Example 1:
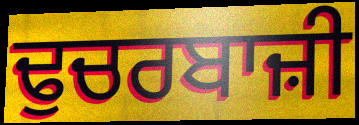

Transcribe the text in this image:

ਢੁਚਰਬਾਜ਼ੀ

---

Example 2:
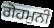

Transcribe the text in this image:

ਗੋਹਮੁਨੀ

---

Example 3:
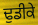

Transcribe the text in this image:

ਢੁਡੀਕੇ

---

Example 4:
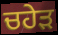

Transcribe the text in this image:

ਚਹੇੜ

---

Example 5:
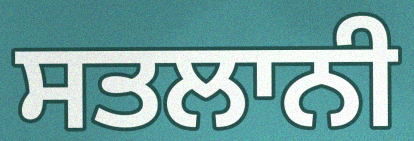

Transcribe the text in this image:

ਸਤਲਾਨੀ